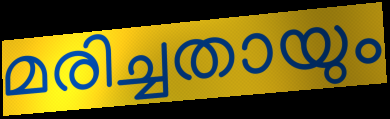
മരിച്ചതായും